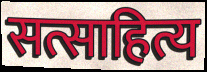
सत्साहित्य